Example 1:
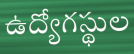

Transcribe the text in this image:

ఉద్యోగస్థుల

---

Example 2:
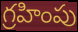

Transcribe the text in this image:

గ్రహింపు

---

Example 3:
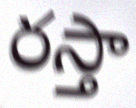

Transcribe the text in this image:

రస్తా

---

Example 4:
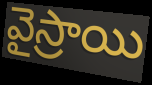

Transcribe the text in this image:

వైస్రాయి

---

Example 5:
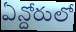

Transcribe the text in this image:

ఏన్దోరులో